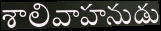
శాలివాహనుడు